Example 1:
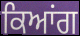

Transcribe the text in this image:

ਕਿਆਂਗ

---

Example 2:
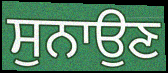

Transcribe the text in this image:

ਸੁਨਾਉਣ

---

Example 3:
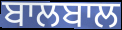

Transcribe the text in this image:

ਬਾਲਬਾਲ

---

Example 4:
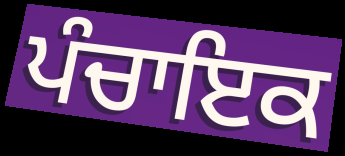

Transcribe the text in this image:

ਪੰਚਾਇਕ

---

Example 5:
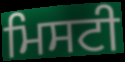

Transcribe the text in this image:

ਮਿਸਟੀ